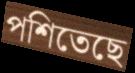
পশিতেছে